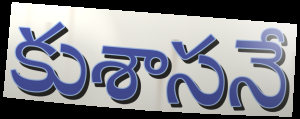
కుశాసనే